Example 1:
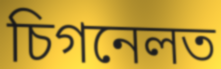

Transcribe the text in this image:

চিগনেলত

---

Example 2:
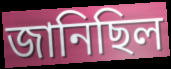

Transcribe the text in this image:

জানিছিল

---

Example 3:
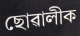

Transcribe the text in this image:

ছোৱালীক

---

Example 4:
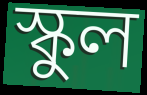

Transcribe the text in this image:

স্কুল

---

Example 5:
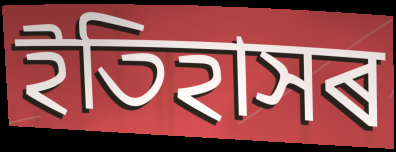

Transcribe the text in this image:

ইতিহাসৰ